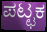
ಪಟ್ಟಕ